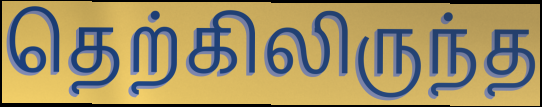
தெற்கிலிருந்த